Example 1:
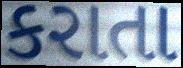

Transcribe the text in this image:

કરાતા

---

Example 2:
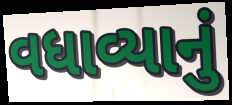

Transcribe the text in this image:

વધાવ્યાનું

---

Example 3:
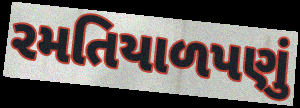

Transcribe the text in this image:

રમતિયાળપણું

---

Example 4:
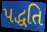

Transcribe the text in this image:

પદ્ધતિ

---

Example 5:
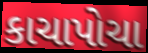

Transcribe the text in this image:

કાચાપોચા